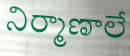
నిర్మాణాలే